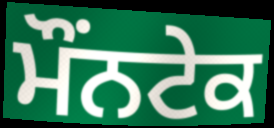
ਮੌਂਨਟੇਕ